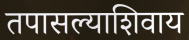
तपासल्याशिवाय